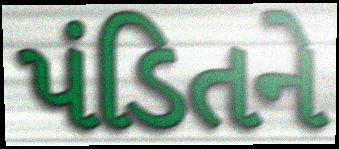
પંડિતને